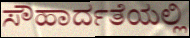
ಸೌಹಾರ್ದತೆಯಲ್ಲಿ